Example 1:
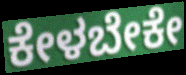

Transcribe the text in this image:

ಕೇಳಬೇಕೇ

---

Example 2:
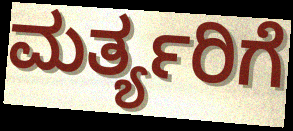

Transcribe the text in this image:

ಮರ್ತ್ಯರಿಗೆ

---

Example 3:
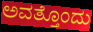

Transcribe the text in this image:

ಅವತ್ತೊಂದು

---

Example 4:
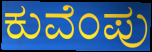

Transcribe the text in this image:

ಕುವೆಂಪು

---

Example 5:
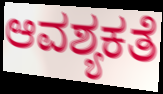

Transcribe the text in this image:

ಆವಶ್ಯಕತೆ